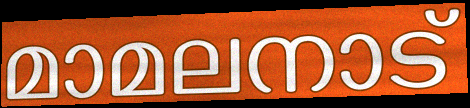
മാമലനാട്